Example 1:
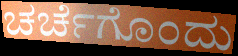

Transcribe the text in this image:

ಚರ್ಚೆಗೊಂದು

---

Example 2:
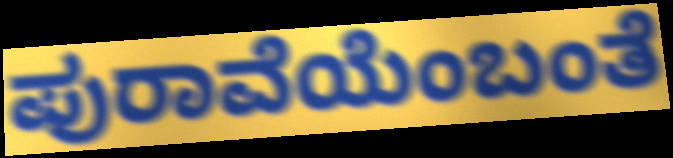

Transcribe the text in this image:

ಪುರಾವೆಯೆಂಬಂತೆ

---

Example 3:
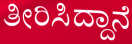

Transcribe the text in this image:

ತೀರಿಸಿದ್ದಾನೆ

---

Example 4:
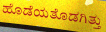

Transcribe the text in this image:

ಹೊಡೆಯತೊಡಗಿತ್ತು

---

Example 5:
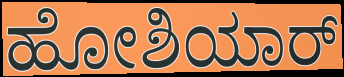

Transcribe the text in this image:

ಹೋಶಿಯಾರ್